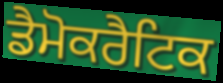
ਡੈਮੋਕਰੈਟਿਕ